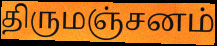
திருமஞ்சனம்